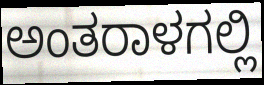
ಅಂತರಾಳಗಲ್ಲಿ